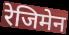
रेजिमेन